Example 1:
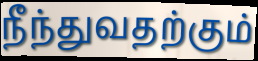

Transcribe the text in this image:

நீந்துவதற்கும்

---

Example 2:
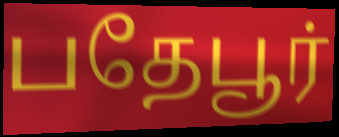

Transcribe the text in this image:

பதேபூர்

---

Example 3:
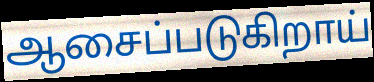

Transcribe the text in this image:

ஆசைப்படுகிறாய்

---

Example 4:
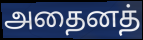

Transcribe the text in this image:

அதைனத்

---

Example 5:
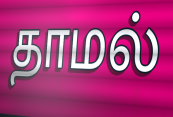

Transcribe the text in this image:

தாமல்